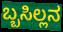
ಬ್ಬಸಿಲ್ಲನ